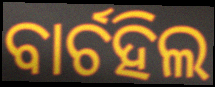
ବାର୍ଚହିଲ